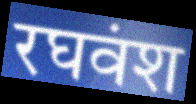
रघवंश